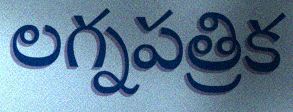
లగ్నపత్రిక